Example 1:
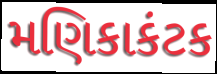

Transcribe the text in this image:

મણિકાકંટક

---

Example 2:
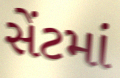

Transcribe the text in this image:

સેંટમાં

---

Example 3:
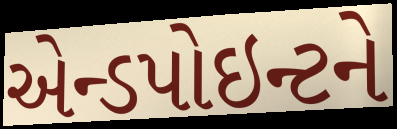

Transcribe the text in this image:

એન્ડપોઇન્ટને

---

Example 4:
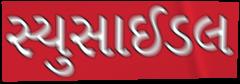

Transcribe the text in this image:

સ્યુસાઈડલ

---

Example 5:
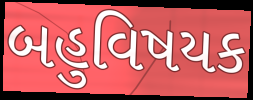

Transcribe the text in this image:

બહુવિષયક